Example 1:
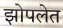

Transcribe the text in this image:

झोपलेत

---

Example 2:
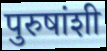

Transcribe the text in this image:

पुरुषांशी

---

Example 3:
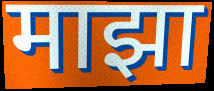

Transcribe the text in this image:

माझा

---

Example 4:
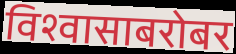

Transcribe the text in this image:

विश्वासाबरोबर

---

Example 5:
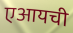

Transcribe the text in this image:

एआयची